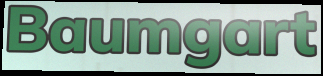
Baumgart